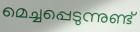
മെച്ചപ്പെടുന്നുണ്ട്